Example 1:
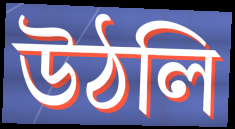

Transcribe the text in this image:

উঠলি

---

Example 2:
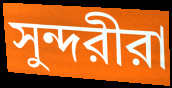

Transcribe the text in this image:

সুন্দরীরা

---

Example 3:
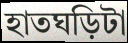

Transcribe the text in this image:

হাতঘড়িটা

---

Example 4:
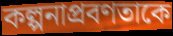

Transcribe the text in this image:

কল্পনাপ্রবণতাকে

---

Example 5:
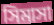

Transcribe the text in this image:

সিমাসা